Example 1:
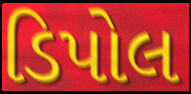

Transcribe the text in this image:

ડિપોલ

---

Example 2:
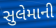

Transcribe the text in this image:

સુલેમાની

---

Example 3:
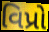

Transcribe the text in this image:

વિપ્રો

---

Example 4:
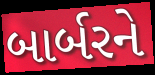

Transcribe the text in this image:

બાર્બરને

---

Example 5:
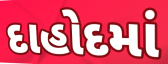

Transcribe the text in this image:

દાહોદમાં